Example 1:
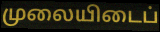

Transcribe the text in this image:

முலையிடைப்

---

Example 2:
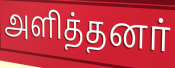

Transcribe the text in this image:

அளித்தனர்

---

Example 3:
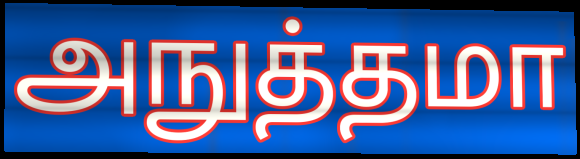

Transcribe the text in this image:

அநுத்தமா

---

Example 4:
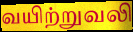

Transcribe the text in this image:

வயிற்றுவலி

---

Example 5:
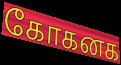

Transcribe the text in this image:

கோகனக